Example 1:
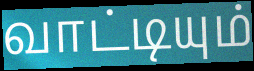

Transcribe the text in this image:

வாட்டியும்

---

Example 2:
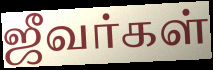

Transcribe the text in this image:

ஜீவர்கள்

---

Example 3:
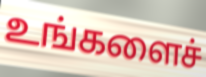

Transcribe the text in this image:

உங்களைச்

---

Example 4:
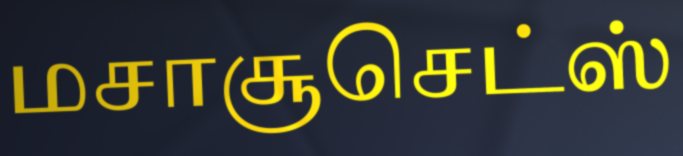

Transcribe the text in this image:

மசாசூசெட்ஸ்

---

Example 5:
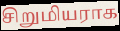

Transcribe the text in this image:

சிறுமியராக